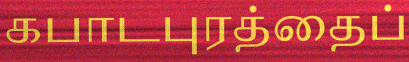
கபாடபுரத்தைப்